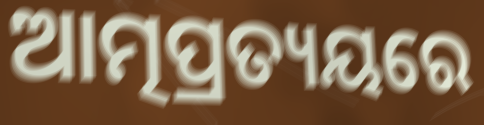
ଆତ୍ମପ୍ରତ୍ୟୟରେ